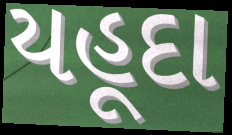
યહૂદા